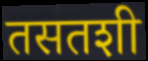
तसतशी